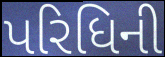
પરિધિની